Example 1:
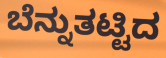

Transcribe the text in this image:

ಬೆನ್ನುತಟ್ಟಿದ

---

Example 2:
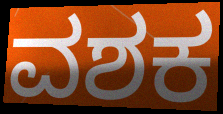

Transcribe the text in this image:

ವಶಕ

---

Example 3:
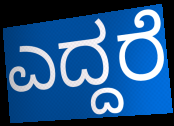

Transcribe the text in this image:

ಎದ್ದರೆ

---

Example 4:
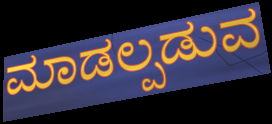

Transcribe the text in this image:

ಮಾಡಲ್ಪಡುವ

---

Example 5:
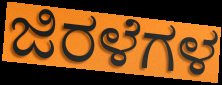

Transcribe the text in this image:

ಜಿರಳೆಗಳ